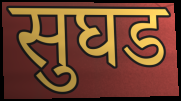
सुघड